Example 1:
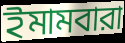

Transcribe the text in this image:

ইমামবারা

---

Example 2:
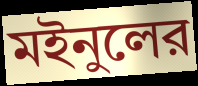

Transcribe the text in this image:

মইনুলের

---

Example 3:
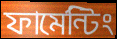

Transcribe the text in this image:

ফার্মেন্টিং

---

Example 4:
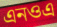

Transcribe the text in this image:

এনওএ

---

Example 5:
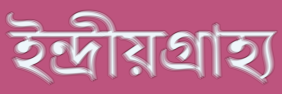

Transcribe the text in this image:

ইন্দ্রীয়গ্রাহ্য